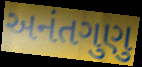
અનંતગુણુ